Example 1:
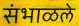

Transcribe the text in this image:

संभाळले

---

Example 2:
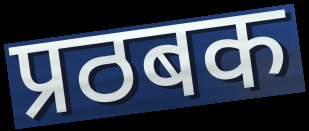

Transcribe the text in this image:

प्रठबक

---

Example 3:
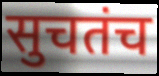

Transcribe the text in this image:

सुचतंच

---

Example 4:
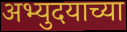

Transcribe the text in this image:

अभ्युदयाच्या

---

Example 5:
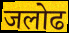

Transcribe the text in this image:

जलोढ